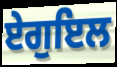
ਏਗੁਇਲ